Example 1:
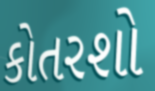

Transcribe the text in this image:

કોતરશો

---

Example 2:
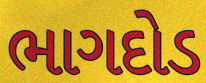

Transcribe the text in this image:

ભાગદોડ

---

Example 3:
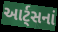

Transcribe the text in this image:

આર્ટ્સનાં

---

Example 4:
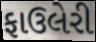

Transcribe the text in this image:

ફાઉલેરી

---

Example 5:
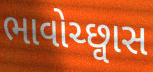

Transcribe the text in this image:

ભાવોચ્છ્વાસ